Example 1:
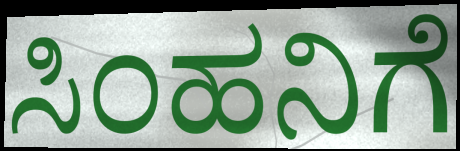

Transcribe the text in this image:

ಸಿಂಹನಿಗೆ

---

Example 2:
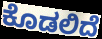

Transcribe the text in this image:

ಕೊಡಲಿದೆ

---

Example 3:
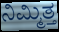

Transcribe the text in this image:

ನಿಮ್ಮಿತ್ತ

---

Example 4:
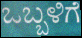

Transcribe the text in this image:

ಒಬ್ಬಳಿಗೆ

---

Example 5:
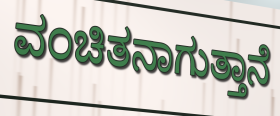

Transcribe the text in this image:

ವಂಚಿತನಾಗುತ್ತಾನೆ